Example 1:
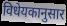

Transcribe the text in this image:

विधेयकानुसार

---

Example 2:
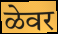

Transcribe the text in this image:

ळेवर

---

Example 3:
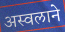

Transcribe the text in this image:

अस्वलाने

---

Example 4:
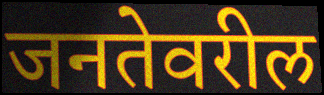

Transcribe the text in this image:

जनतेवरील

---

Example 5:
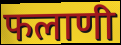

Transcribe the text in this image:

फलाणी